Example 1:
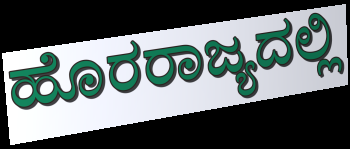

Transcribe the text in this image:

ಹೊರರಾಜ್ಯದಲ್ಲಿ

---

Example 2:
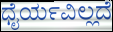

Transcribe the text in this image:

ಧೈರ್ಯವಿಲ್ಲದೆ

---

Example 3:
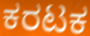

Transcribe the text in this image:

ಕರಟಕ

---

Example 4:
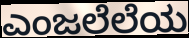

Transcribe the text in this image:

ಎಂಜಲೆಲೆಯ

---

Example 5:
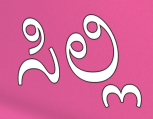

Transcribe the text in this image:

ಸಿಲ್ಲಿ